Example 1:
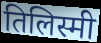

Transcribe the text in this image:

तिलिस्मी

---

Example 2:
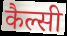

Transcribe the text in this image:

कैल्सी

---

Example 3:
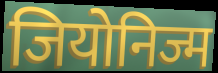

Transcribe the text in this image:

जियोनिज्म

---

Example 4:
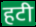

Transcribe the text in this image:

हटी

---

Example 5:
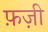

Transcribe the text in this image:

फ़ज़ी